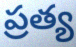
ప్రత్య